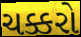
ચક્કરો